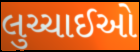
લુચ્ચાઈઓ